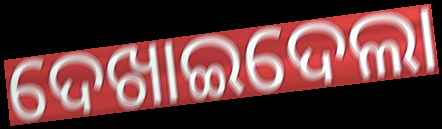
ଦେଖାଇଦେଲା